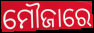
ମୌଜାରେ